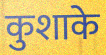
कुशाके